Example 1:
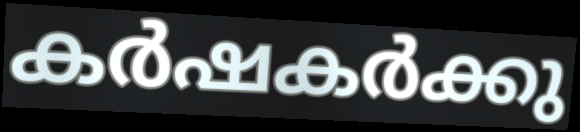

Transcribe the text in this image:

കർഷകർക്കു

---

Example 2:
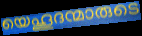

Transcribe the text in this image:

യെഹൂദന്മാരുടെ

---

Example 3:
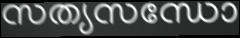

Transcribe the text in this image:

സത്യസന്ധോ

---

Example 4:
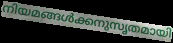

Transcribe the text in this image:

നിയമങ്ങൾക്കനുസൃതമായി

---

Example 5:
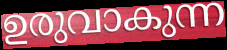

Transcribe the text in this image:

ഉരുവാകുന്ന